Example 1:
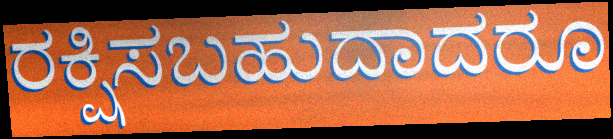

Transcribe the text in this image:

ರಕ್ಷಿಸಬಹುದಾದರೂ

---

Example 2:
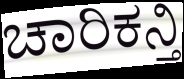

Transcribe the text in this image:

ಚಾರಿಕನ್ತಿ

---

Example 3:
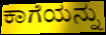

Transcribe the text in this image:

ಕಾಗೆಯನ್ನು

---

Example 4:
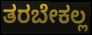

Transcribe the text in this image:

ತರಬೇಕಲ್ಲ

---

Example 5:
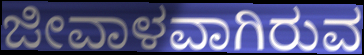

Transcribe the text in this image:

ಜೀವಾಳವಾಗಿರುವ